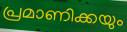
പ്രമാണിക്കയും